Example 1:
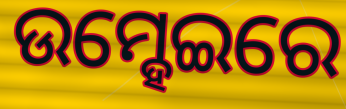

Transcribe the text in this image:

ଉମ୍ହେଇରେ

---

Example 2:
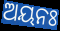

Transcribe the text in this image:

ଅୟନଃ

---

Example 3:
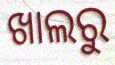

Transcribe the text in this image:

ଖାଲରୁ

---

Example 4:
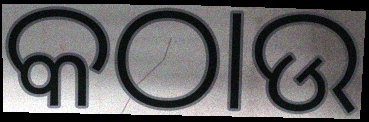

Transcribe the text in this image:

କଠାଉ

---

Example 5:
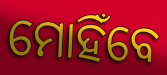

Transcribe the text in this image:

ମୋହିଁବେ